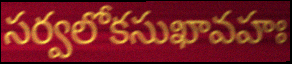
సర్వలోకసుఖావహః